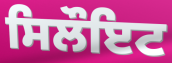
ਸਿਲੌਇਟ